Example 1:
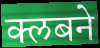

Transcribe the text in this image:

क्लबने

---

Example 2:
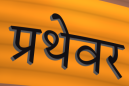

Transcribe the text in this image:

प्रथेवर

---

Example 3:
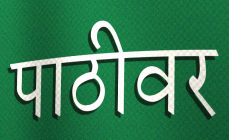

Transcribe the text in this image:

पाठीवर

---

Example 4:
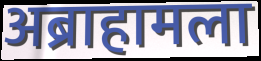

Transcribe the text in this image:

अब्राहामला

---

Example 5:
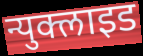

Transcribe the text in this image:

न्युक्लाइड